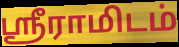
ஸ்ரீராமிடம்